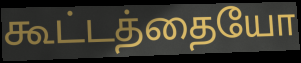
கூட்டத்தையோ